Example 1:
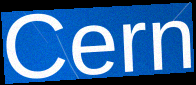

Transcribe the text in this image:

Cern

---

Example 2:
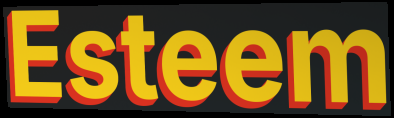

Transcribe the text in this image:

Esteem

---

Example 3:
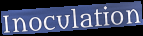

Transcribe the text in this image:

Inoculation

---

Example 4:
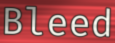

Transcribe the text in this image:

Bleed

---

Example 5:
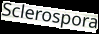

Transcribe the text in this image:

Sclerospora